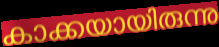
കാക്കയായിരുന്നു